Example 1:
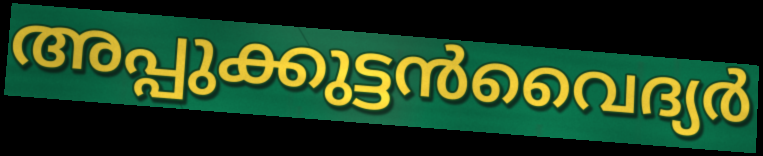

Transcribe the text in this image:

അപ്പുക്കുട്ടൻവൈദ്യർ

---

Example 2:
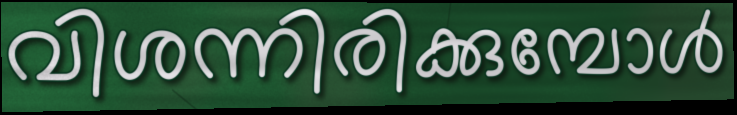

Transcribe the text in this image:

വിശന്നിരിക്കുമ്പോൾ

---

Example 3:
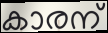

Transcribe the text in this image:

കാരന്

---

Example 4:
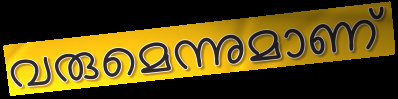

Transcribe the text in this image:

വരുമെന്നുമാണ്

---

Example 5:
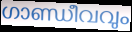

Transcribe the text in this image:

ഗാണ്ഡീവവും